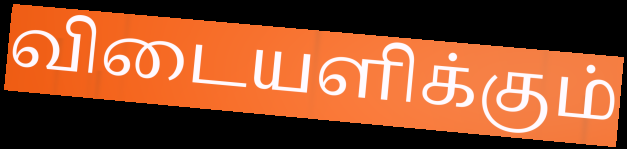
விடையளிக்கும்